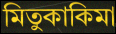
মিতুকাকিমা